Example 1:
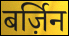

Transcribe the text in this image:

बर्ज़िन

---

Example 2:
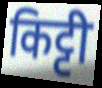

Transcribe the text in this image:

किट्टी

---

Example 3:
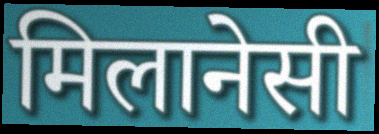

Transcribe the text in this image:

मिलानेसी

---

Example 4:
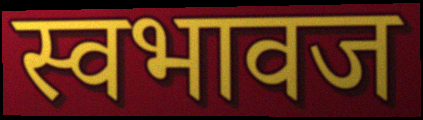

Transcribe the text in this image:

स्वभावज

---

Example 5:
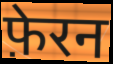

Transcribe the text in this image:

फ़ेरन